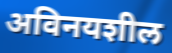
अविनयशील